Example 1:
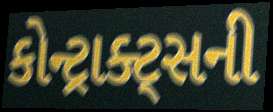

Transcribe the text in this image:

કોન્ટ્રાક્ટ્સની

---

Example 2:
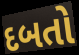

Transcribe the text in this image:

દબતો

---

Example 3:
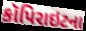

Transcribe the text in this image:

કૉપિરાઇટના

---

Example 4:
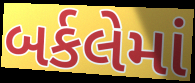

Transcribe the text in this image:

બર્કલેમાં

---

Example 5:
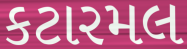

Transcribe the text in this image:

કટારમલ